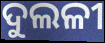
ଦୁଲଳୀ